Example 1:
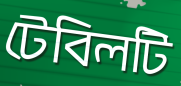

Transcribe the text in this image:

টেবিলটি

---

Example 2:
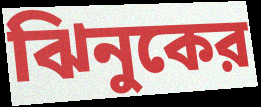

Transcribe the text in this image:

ঝিনুকের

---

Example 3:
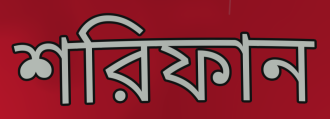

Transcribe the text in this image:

শরিফান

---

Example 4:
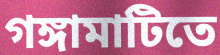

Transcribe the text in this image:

গঙ্গামাটিতে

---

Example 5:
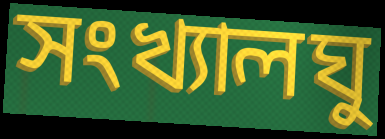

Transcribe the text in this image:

সংখ্যালঘু